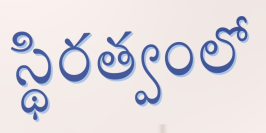
స్థిరత్వంలో